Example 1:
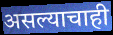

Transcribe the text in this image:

असल्याचाही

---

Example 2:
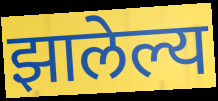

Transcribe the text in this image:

झालेल्य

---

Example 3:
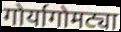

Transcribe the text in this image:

गोर्यागोमट्या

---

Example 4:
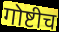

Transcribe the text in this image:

गोष्टीच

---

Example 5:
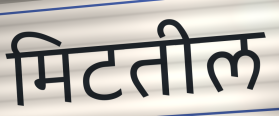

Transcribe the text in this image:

मिटतील